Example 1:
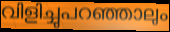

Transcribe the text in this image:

വിളിച്ചുപറഞ്ഞാലും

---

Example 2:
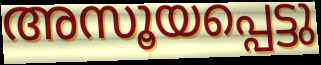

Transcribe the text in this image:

അസൂയപ്പെട്ടു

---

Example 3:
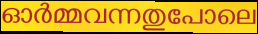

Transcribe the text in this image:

ഓർമ്മവന്നതുപോലെ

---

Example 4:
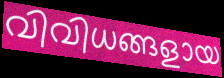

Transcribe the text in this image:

വിവിധങ്ങളായ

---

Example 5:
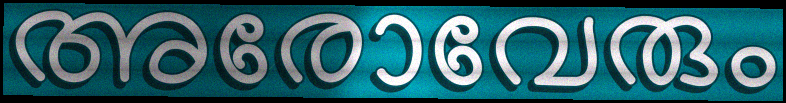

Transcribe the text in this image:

അരോവേരും